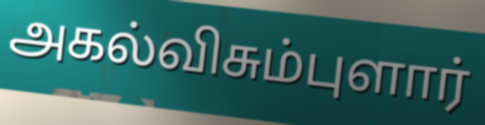
அகல்விசும்புளார்